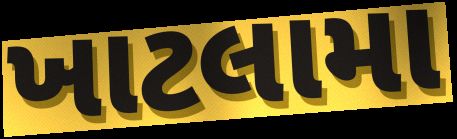
ખાટલામા